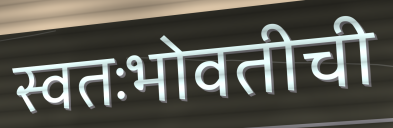
स्वतःभोवतीची